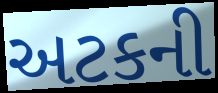
અટકની